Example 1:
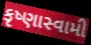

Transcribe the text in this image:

કૃષ્ણાસ્વામી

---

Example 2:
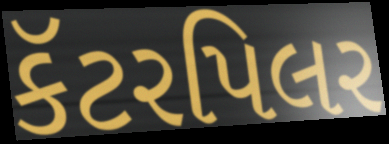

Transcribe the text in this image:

કૅટરપિલર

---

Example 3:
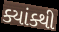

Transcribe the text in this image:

ક્યાંક્થી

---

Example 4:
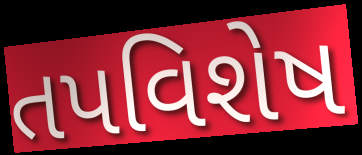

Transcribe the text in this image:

તપવિશેષ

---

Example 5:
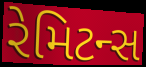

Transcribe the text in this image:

રેમિટન્સ